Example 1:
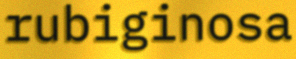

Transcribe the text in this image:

rubiginosa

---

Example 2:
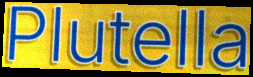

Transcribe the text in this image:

Plutella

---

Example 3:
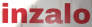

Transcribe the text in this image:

inzalo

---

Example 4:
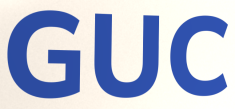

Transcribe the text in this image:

GUC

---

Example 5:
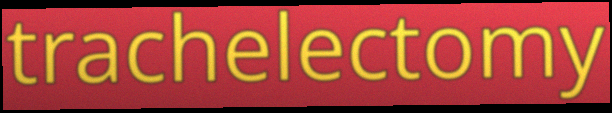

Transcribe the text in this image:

trachelectomy